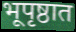
भूपृष्ठात